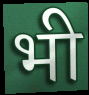
भी